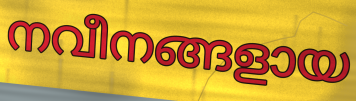
നവീനങ്ങളായ